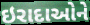
ઇરાદાઓને